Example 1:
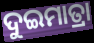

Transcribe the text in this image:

ଦୁଇମାତ୍ରା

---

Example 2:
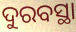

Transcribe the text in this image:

ଦୁରବସ୍ଥା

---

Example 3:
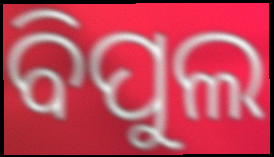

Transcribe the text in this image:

ବିପୁଲ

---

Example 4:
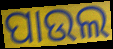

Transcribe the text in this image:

ପାଉଲ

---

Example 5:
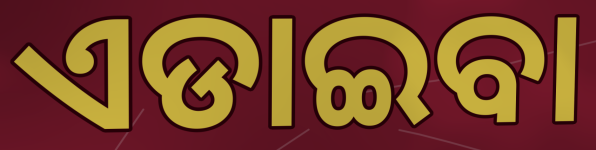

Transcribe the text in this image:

ଏଡାଇବା